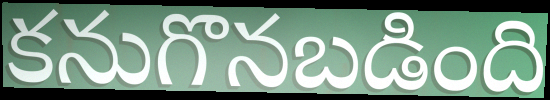
కనుగొనబడింది